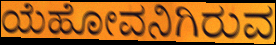
ಯೆಹೋವನಿಗಿರುವ